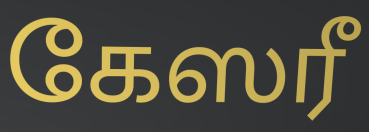
கேஸரீ